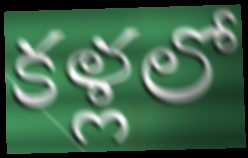
కళ్లలో